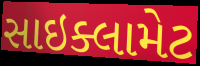
સાઇક્લામેટ